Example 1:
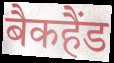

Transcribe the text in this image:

बैकहैंड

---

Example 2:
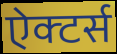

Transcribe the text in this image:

ऐक्‍टर्स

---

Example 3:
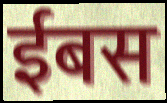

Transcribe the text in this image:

ईबस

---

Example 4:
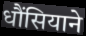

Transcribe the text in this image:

धौंसियाने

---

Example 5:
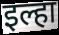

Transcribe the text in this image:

इल्हा